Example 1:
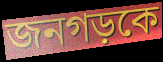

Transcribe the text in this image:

জনগড়কে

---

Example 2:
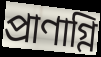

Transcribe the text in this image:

প্রাণাগ্নি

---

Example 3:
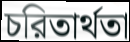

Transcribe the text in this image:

চরিতার্থতা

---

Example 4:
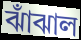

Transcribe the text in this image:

ঝাঁঝাল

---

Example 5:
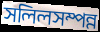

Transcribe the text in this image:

সলিলসম্পন্ন